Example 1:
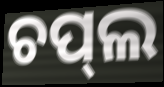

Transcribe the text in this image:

ଚପ୍‌ଲ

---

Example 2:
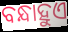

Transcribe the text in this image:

ବନ୍ଧାହୁଏ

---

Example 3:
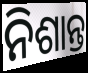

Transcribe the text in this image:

ନିଶାନ୍ତ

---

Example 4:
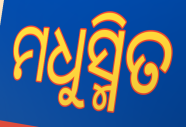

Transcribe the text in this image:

ମଧୁସ୍ମିତ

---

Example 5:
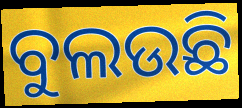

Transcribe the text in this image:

ବୁଲଉଛି